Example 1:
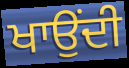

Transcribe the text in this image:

ਖਾਉਂਦੀ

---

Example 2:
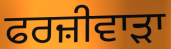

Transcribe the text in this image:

ਫਰਜ਼ੀਵਾਡ਼ਾ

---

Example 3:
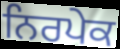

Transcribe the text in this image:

ਨਿਰਪੇਕ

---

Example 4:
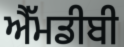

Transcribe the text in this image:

ਐੱਮਡੀਬੀ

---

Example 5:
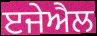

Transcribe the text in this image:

ੲਜੇਐਲ